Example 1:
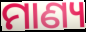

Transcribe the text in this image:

ମାଣ୍ୟ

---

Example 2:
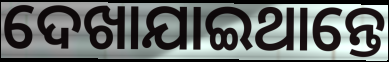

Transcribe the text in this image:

ଦେଖାଯାଇଥାନ୍ତେ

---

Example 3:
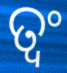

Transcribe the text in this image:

ତ୍ୱଂ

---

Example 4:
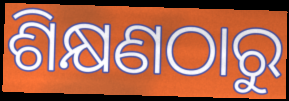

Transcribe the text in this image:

ଶିକ୍ଷଣଠାରୁ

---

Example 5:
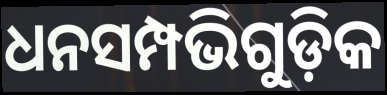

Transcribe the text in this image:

ଧନସମ୍ପଭିଗୁଡ଼ିକ